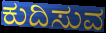
ಕುದಿಸುವ